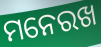
ମନେରଖ